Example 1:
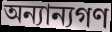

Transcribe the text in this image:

অন্যান্যগণ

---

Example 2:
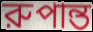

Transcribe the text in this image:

রুপান্ত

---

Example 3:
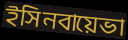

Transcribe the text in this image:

ইসিনবায়েভা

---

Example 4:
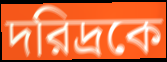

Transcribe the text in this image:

দরিদ্রকে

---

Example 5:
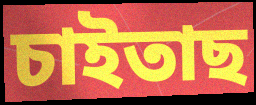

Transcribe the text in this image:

চাইতাছ